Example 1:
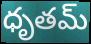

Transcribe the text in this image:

ధృతమ్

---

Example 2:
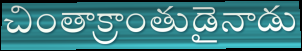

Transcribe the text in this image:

చింతాక్రాంతుడైనాడు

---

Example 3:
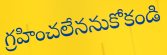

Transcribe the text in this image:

గ్రహించలేననుకోకండి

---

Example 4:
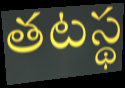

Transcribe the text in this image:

తటస్థ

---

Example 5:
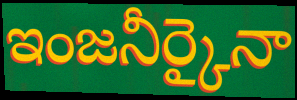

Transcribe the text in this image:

ఇంజనీర్కైనా